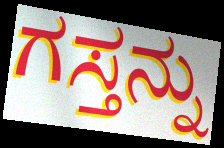
ಗಸ್ತನ್ನು